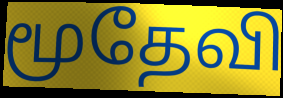
மூதேவி